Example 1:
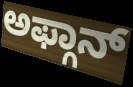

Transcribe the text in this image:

ಅಫ್ಗಾನ್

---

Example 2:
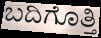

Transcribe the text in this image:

ಬದಿಗೊತ್ತಿ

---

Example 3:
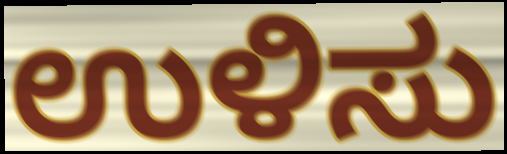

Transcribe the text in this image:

ಉಳಿಸು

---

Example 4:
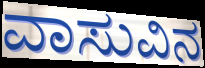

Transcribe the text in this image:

ವಾಸುವಿನ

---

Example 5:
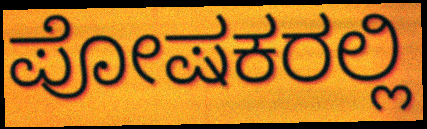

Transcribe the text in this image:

ಪೋಷಕರಲ್ಲಿ